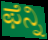
ಫೆನ್ನಿ